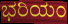
ಭರಿಯಂ